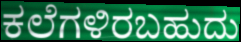
ಕಲೆಗಳಿರಬಹುದು